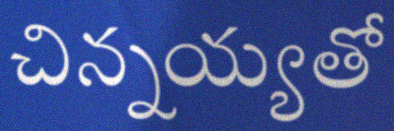
చిన్నయ్యతో